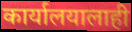
कार्यालयालाही